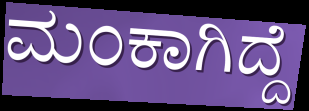
ಮಂಕಾಗಿದ್ದೆ